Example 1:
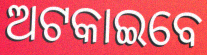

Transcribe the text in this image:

ଅଟକାଇବେ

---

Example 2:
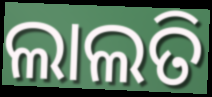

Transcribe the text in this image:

ଲାଲତି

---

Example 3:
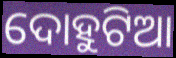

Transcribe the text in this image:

ଦୋହୁଟିଆ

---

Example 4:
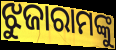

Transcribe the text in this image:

ଝୁଜାରାମଙ୍କୁ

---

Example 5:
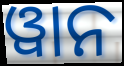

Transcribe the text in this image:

ୱାନ